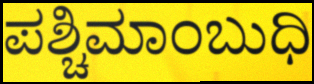
ಪಶ್ಚಿಮಾಂಬುಧಿ